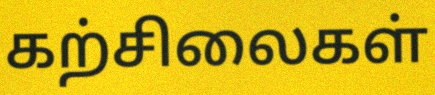
கற்சிலைகள்